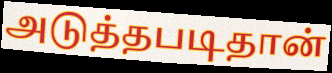
அடுத்தபடிதான்